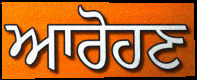
ਆਰੋਹਣ